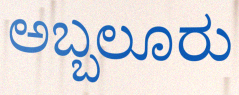
ಅಬ್ಬಲೂರು